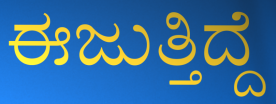
ಈಜುತ್ತಿದ್ದೆ